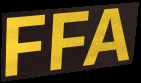
FFA